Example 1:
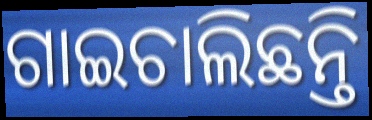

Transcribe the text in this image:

ଗାଇଚାଲିଛନ୍ତି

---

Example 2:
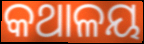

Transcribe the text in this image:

କଥାଳୟ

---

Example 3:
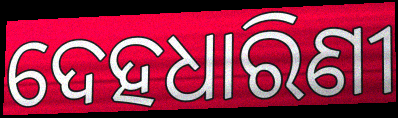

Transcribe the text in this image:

ଦେହଧାରିଣୀ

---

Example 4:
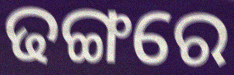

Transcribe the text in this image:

ଢଙ୍ଗରେ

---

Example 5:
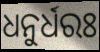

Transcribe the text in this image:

ଧନୁର୍ଧରଃ